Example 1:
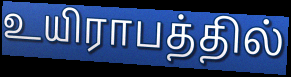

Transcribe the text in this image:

உயிராபத்தில்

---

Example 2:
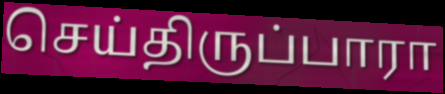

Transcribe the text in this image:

செய்திருப்பாரா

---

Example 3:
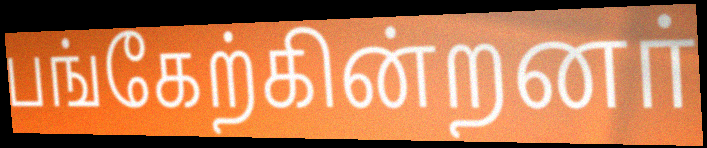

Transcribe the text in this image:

பங்கேற்கின்றனர்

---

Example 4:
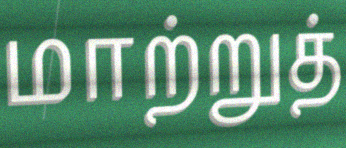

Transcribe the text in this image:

மாற்றுத்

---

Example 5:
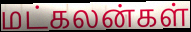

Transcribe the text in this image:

மட்கலன்கள்